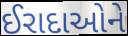
ઈરાદાઓને